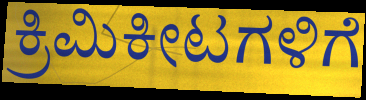
ಕ್ರಿಮಿಕೀಟಗಳಿಗೆ